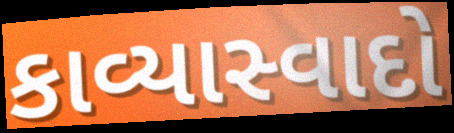
કાવ્યાસ્વાદો